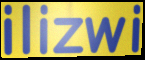
ilizwi